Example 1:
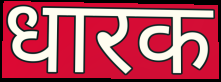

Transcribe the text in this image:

धारक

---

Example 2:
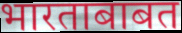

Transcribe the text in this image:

भारताबाबत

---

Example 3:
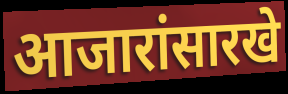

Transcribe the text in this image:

आजारांसारखे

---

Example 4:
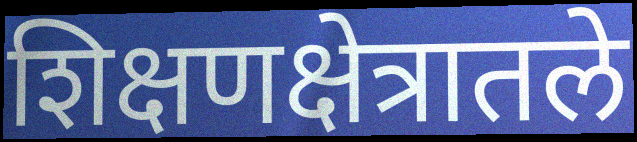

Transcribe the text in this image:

शिक्षणक्षेत्रातले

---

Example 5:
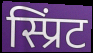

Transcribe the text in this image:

स्प्रिंट